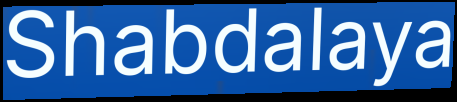
Shabdalaya